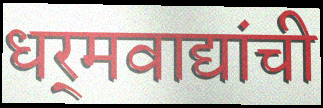
धर्मवाद्यांची